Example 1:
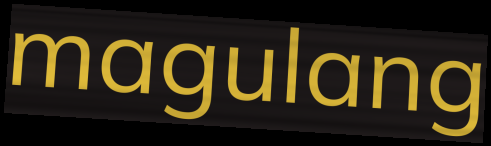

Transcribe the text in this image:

magulang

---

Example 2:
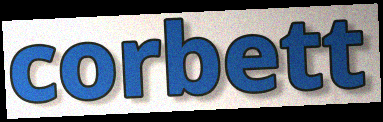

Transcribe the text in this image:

corbett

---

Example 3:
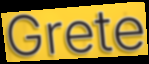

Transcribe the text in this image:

Grete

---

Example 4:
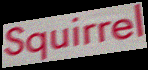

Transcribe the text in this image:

Squirrel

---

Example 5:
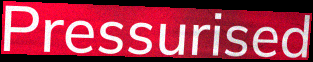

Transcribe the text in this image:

Pressurised